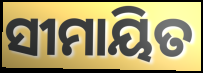
ସୀମାୟିତ